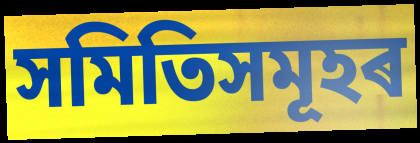
সমিতিসমূহৰ